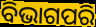
ବିଭାଗପରି